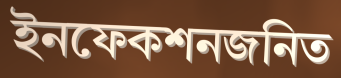
ইনফেকশনজনিত